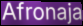
Afronaja